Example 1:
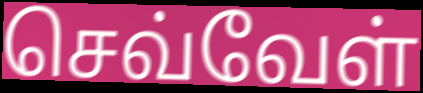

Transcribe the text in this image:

செவ்வேள்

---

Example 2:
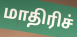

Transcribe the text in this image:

மாதிரிச்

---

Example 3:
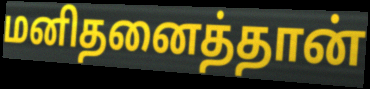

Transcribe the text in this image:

மனிதனைத்தான்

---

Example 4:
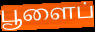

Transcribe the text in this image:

பூளைப்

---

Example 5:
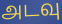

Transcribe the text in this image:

அடவு